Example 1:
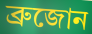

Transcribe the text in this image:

ব্রুজোন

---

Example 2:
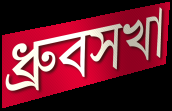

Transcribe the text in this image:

ধ্রুবসখা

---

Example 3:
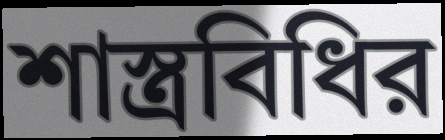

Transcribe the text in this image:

শাস্ত্রবিধির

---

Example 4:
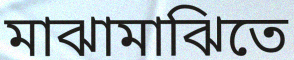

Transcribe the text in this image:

মাঝামাঝিতে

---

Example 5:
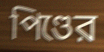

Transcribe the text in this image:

পিণ্ডের